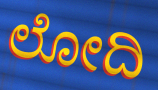
ಲೋದಿ